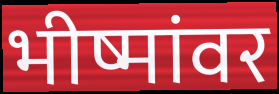
भीष्मांवर